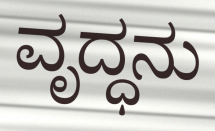
ವೃದ್ಧನು